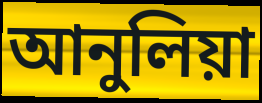
আনুলিয়া